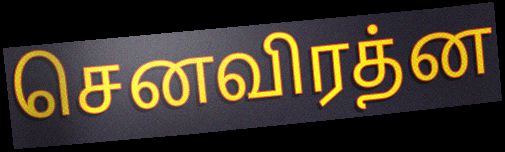
செனவிரத்ன